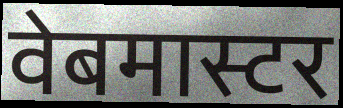
वेबमास्टर